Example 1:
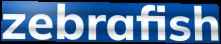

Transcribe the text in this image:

zebrafish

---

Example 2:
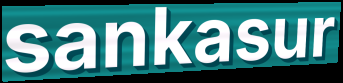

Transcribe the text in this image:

sankasur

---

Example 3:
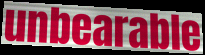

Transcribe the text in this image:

unbearable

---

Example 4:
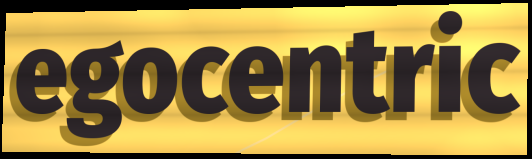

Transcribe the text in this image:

egocentric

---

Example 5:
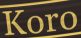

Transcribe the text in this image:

Koro